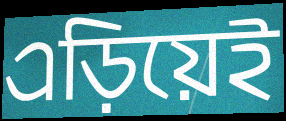
এড়িয়েই